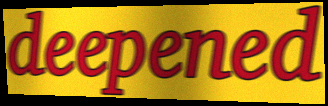
deepened